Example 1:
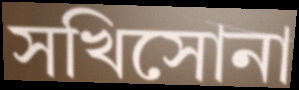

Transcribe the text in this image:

সখিসোনা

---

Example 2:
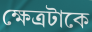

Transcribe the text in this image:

ক্ষেত্রটাকে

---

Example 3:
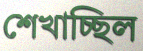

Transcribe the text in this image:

শেখাচ্ছিল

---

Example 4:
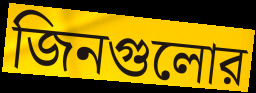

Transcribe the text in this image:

জিনগুলোর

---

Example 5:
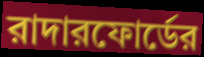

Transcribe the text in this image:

রাদারফোর্ডের